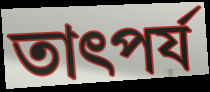
তাৎপর্য